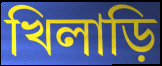
খিলাড়ি